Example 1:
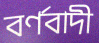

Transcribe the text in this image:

বৰ্ণবাদী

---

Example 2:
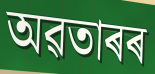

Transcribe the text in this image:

অৱতাৰৰ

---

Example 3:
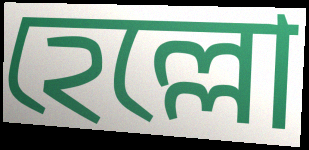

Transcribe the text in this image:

হেল্লো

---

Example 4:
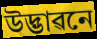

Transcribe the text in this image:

উদ্ভাৱনে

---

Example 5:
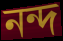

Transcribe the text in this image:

নন্দ